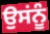
ਉਸਂਨੂੰ